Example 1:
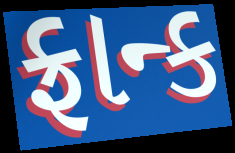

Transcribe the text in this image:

ફ્રાન્ક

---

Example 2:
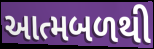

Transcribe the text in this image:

આત્મબળથી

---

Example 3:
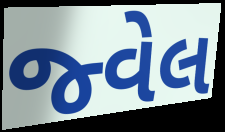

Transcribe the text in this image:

જ્વેલ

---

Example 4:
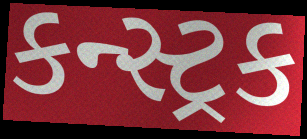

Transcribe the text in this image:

કન્સ્ટ્રક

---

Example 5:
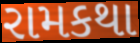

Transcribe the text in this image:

રામકથા